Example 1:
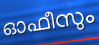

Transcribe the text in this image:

ഓഫീസും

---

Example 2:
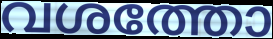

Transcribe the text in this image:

വശത്തോ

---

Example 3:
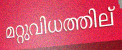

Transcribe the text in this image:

മറ്റുവിധത്തില്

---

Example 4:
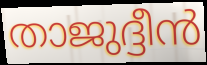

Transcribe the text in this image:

താജുദ്ദീൻ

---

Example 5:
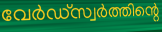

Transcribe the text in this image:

വേർഡ്സ്വർത്തിന്റെ